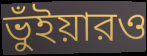
ভুঁইয়ারও